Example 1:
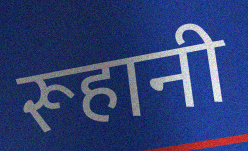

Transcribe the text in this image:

रूहानी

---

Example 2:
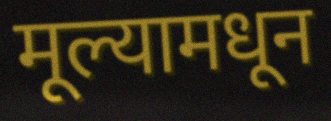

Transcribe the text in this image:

मूल्यामधून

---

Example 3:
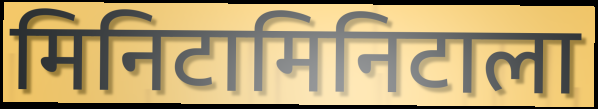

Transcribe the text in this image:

मिनिटामिनिटाला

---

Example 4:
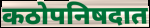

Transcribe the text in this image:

कठोपनिषदात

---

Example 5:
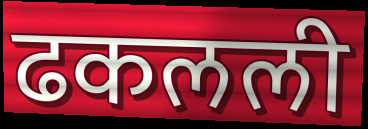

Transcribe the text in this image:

ढकलली